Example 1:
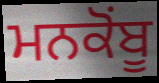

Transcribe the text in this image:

ਮਨਕੋਂਬੂ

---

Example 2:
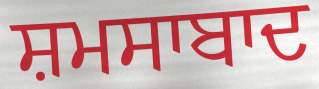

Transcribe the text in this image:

ਸ਼ਮਸਾਬਾਦ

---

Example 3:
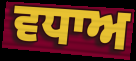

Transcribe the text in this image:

ਵਧਾਅ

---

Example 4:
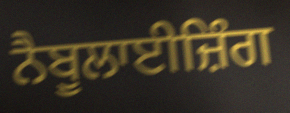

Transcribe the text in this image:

ਨੈਬੂਲਾਈਜ਼ਿੰਗ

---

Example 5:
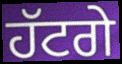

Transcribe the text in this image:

ਹੱਟਗੇ